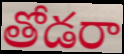
తోడరా